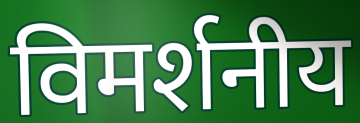
विमर्शनीय